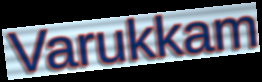
Varukkam